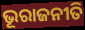
ଭୂରାଜନୀତି